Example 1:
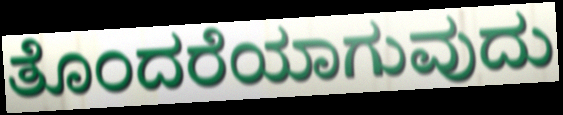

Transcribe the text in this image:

ತೊಂದರೆಯಾಗುವುದು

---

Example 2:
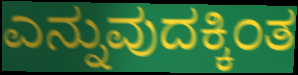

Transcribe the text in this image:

ಎನ್ನುವುದಕ್ಕಿಂತ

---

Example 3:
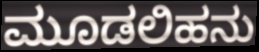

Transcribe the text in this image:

ಮೂಡಲಿಹನು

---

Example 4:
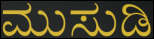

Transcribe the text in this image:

ಮುಸುಡಿ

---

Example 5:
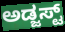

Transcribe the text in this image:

ಅಡ್ಜಸ್ಟ್